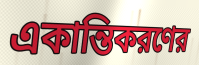
একান্তিকরণের